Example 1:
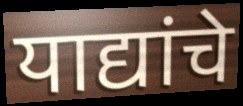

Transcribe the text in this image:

याद्यांचे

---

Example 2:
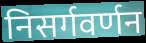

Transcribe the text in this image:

निसर्गवर्णन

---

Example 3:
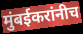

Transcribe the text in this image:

मुंबईकरांनीच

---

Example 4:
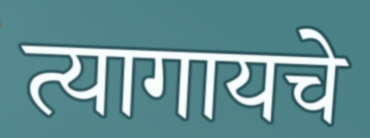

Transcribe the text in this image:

त्यागायचे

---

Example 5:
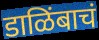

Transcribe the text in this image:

डाळिंबाचं